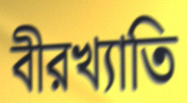
বীরখ্যাতি